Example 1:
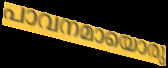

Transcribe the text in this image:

പാവനമായൊരു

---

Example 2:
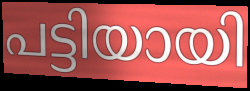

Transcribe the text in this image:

പട്ടിയായി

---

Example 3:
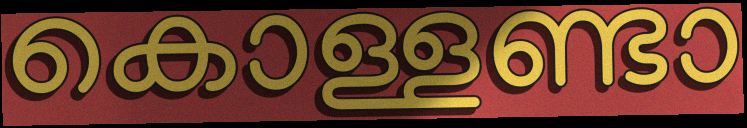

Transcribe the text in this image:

കൊള്ളണ്ടാ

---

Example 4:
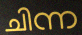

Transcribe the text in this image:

ചിന്ന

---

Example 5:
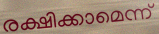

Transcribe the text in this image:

രക്ഷിക്കാമെന്ന്